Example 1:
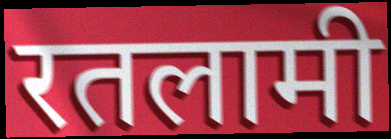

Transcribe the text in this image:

रतलामी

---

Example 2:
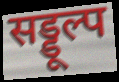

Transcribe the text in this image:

सड्डूल्प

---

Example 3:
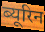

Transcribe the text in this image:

ब्यूरिन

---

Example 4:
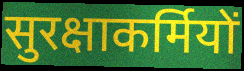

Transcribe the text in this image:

सुरक्षाकर्मियों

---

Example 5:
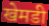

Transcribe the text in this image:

खेमडी